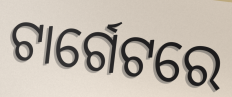
ଟାର୍ଗେଟରେ